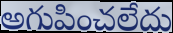
అగుపించలేదు